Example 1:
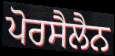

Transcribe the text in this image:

ਪੋਰਸੈਲੈਨ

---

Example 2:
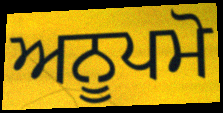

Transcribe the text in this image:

ਅਨੂਪਮੋ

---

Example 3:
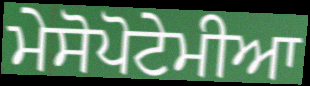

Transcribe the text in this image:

ਮੇਸੋਪੋਟੇਮੀਆ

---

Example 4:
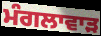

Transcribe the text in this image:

ਮੰਗਲਾਵਾੜ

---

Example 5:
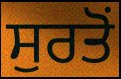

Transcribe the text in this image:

ਸੁਰਤੋਂ